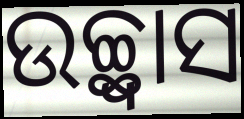
ଉଚ୍ଛ୍ୱାସ